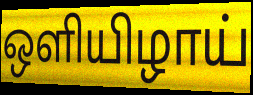
ஒளியிழாய்